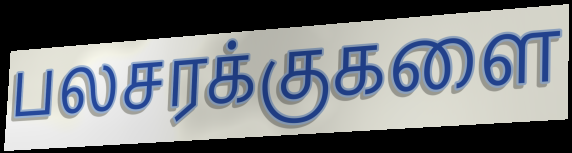
பலசரக்குகளை